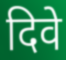
दिवे